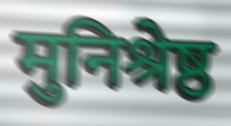
मुनिश्रेष्ठ